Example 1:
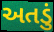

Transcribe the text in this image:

અતડું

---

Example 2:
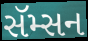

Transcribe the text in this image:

સૅમ્સન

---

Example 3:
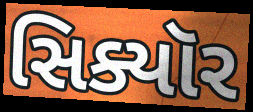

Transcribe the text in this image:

સિક્યૉર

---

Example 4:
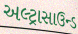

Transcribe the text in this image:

અલ્ટ્રાસાઉન્ડ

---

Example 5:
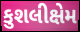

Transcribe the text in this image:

કુશલીક્ષેમ